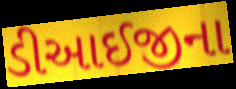
ડીઆઈજીના